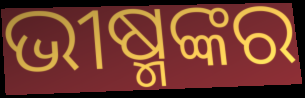
ଭୀଷ୍ମଙ୍କର